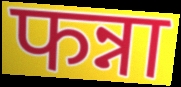
फन्ना